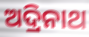
ଅଦ୍ରିନାଥ